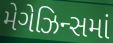
મેગેઝિન્સમાં